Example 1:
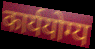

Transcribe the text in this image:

कार्ययोग्य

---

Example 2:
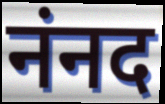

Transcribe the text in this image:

नंनद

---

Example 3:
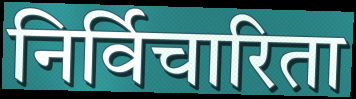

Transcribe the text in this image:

निर्विचारिता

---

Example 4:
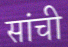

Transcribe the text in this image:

सांची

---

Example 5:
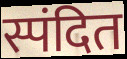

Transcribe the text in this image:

स्पंदित